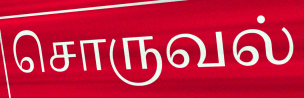
சொருவல்